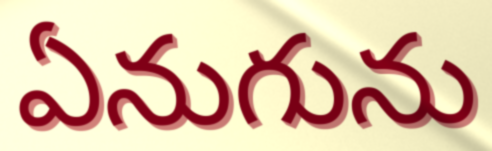
ఏనుగును